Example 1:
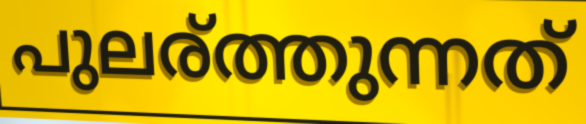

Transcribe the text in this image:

പുലര്ത്തുന്നത്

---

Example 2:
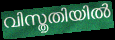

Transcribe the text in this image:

വിസ്തൃതിയിൽ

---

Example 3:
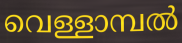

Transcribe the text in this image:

വെള്ളാമ്പൽ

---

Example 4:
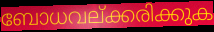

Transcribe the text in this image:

ബോധവല്ക്കരിക്കുക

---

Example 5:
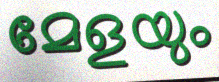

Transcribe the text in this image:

മേളയും